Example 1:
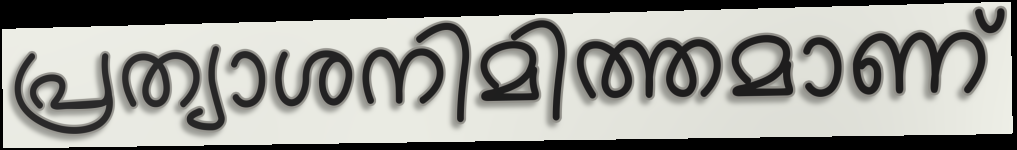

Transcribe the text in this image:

പ്രത്യാശനിമിത്തമാണ്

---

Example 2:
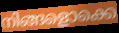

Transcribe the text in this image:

നിങ്ങളൊക്കെ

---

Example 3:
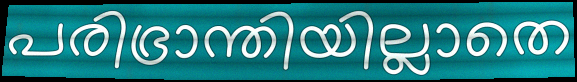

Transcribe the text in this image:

പരിഭ്രാന്തിയില്ലാതെ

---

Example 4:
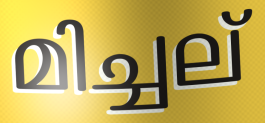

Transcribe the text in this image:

മിച്ചല്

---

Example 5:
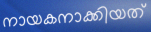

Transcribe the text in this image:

നായകനാക്കിയത്